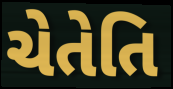
ચેતેતિ